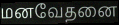
மனவேதனை